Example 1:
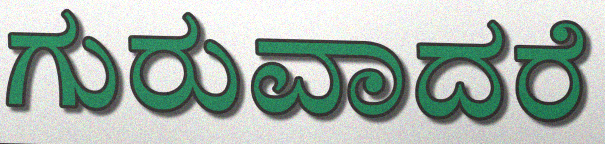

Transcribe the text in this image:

ಗುರುವಾದರೆ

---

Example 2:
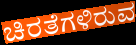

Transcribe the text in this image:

ಚಿರತೆಗಳಿರುವ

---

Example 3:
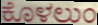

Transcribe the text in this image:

ಕೊಳಲುಂ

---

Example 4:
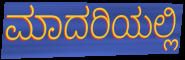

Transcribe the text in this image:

ಮಾದರಿಯಲ್ಲಿ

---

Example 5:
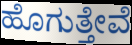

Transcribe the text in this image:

ಹೊಗುತ್ತೇವೆ